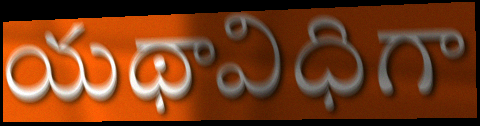
యథావిధిగా